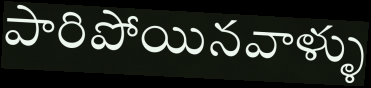
పారిపోయినవాళ్ళు